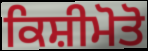
ਕਿਸ਼ੀਮੋਤੋ